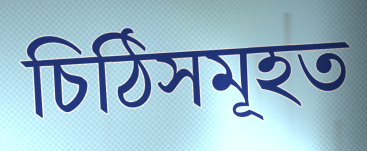
চিঠিসমূহত